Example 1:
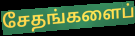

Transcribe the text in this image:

சேதங்களைப்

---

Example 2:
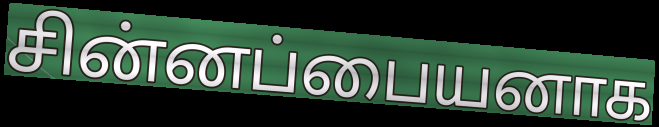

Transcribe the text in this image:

சின்னப்பையனாக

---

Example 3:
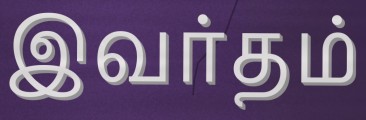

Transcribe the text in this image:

இவர்தம்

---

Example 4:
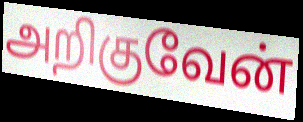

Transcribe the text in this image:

அறிகுவேன்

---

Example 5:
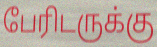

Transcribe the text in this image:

பேரிடருக்கு